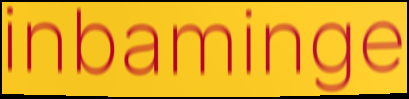
inbaminge